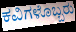
ಕವಿಗಳೊಬ್ಬರು